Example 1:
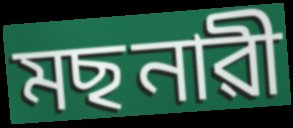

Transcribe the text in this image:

মছনাৱী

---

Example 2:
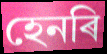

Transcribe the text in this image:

হেনৰি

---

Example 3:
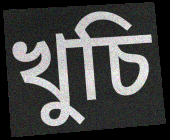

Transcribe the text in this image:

খুচি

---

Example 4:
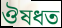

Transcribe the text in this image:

ঔষধত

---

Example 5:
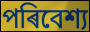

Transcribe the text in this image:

পৰিবেশ্য